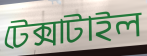
টেক্সাটাইল